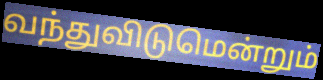
வந்துவிடுமென்றும்